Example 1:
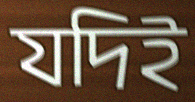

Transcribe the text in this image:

যদিই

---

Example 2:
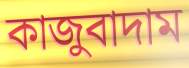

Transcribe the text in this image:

কাজুবাদাম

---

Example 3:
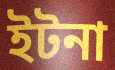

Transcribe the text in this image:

ইটনা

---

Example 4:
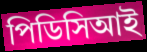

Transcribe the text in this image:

পিডিসিআই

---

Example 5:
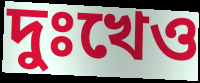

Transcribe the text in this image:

দুঃখেও